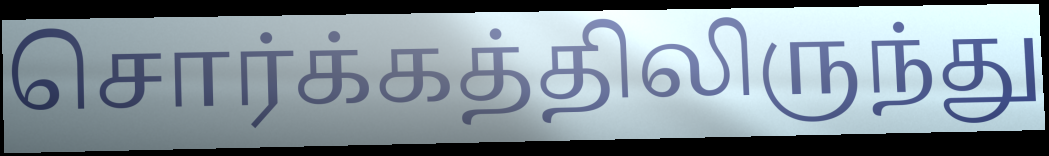
சொர்க்கத்திலிருந்து